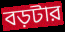
বড়টার